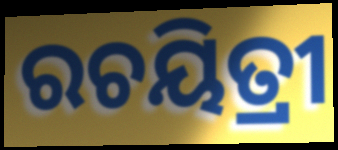
ରଚୟିତ୍ରୀ